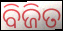
ବିଜିତ